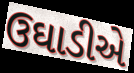
ઉઘાડીએ